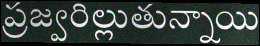
ప్రజ్వరిల్లుతున్నాయి